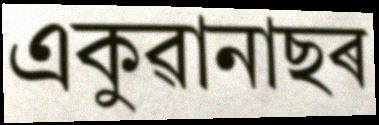
একুৱানাছৰ